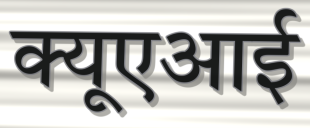
क्यूएआई